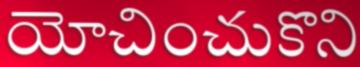
యోచించుకొని